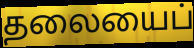
தலையைப்